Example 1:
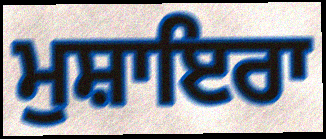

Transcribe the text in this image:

ਮੁਸ਼ਾਇਰਾ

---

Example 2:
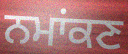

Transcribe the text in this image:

ਨਮਾਂਕਣ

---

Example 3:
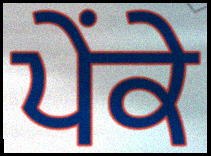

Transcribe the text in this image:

ਪੇਂਕੇ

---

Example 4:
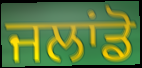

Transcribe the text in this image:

ਜਲਾਂਡੋ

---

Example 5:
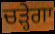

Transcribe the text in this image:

ਚੜ੍ਹੇਗਾ